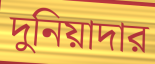
দুনিয়াদার